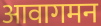
आवागमन